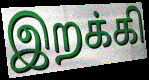
இறக்கி